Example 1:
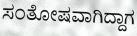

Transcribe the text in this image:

ಸಂತೋಷವಾಗಿದ್ದಾಗ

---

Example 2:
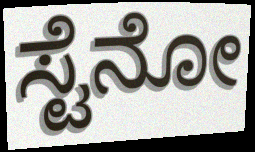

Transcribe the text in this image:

ಸ್ಟೆನೋ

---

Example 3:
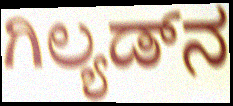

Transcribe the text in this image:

ಗಿಲ್ಯಡ್‌ನ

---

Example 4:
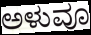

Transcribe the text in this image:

ಅಳುವೂ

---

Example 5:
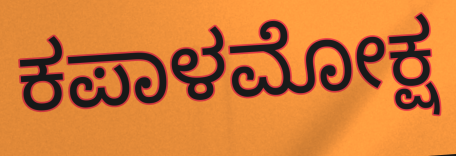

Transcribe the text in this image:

ಕಪಾಳಮೋಕ್ಷ